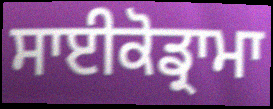
ਸਾਈਕੋਡ੍ਰਾਮਾ